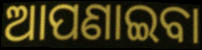
ଆପଣାଇବା